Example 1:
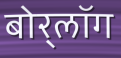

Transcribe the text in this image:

बोर्‌लॉग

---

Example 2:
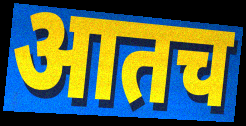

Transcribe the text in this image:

आतच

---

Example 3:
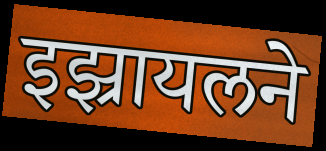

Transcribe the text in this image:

इझ्रायलने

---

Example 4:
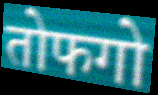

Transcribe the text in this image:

तोफगो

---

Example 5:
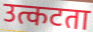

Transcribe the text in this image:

उत्कटता